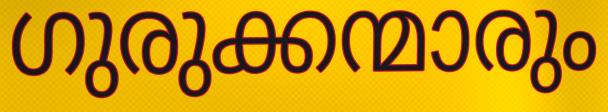
ഗുരുക്കന്മാരും